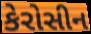
કેરોસીન